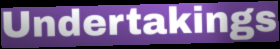
Undertakings